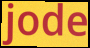
jode